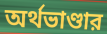
অর্থভাণ্ডার